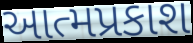
આત્મપ્રકાશ